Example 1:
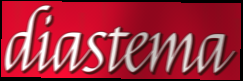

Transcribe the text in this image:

diastema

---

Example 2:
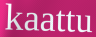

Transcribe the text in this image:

kaattu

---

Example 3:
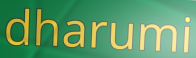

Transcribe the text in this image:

dharumi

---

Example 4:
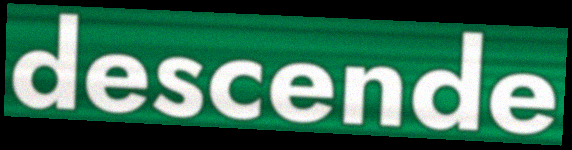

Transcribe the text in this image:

descende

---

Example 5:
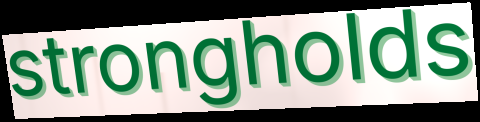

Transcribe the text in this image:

strongholds